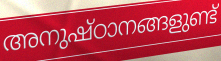
അനുഷ്ഠാനങ്ങളുണ്ട്